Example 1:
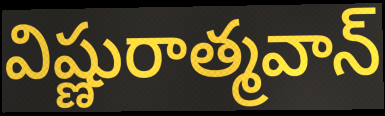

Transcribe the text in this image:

విష్ణురాత్మవాన్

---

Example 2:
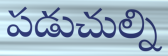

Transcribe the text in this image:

పడుచుల్ని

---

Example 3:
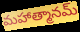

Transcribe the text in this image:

మహాత్మానమ్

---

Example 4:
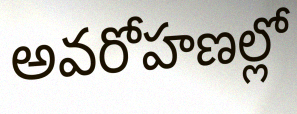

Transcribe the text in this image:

అవరోహణల్లో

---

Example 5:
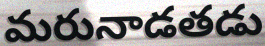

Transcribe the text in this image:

మరునాడతడు